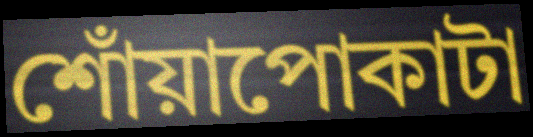
শোঁয়াপোকাটা